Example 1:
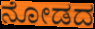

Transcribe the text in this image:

ನೋಡದ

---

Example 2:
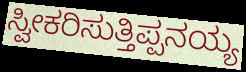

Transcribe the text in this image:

ಸ್ವೀಕರಿಸುತ್ತಿಪ್ಪನಯ್ಯ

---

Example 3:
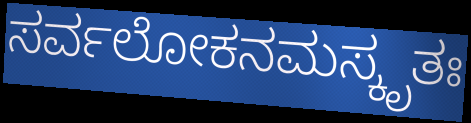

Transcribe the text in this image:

ಸರ್ವಲೋಕನಮಸ್ಕೃತಃ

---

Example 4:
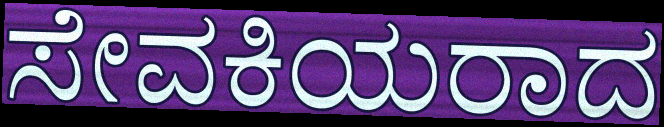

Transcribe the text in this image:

ಸೇವಕಿಯರಾದ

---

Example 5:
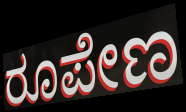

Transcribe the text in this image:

ರೂಪೇಣ